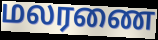
மலரணை